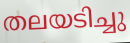
തലയടിച്ചു